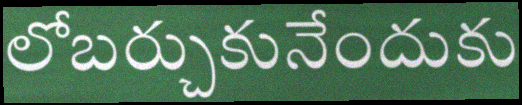
లోబర్చుకునేందుకు